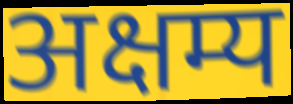
अक्षम्य